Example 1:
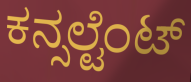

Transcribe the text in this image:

ಕನ್ಸಲ್ಟೆಂಟ್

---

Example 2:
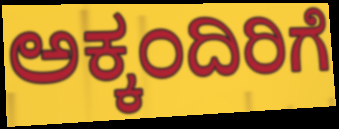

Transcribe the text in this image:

ಅಕ್ಕಂದಿರಿಗೆ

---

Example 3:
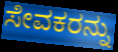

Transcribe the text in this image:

ಸೇವಕರನ್ನು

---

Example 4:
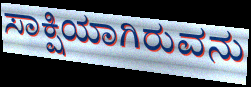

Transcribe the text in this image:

ಸಾಕ್ಷಿಯಾಗಿರುವನು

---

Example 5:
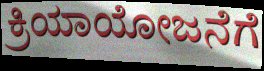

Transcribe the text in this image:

ಕ್ರಿಯಾಯೋಜನೆಗೆ